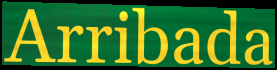
Arribada